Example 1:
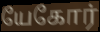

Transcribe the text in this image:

யேகோர்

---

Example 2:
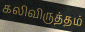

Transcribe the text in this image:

கலிவிருத்தம்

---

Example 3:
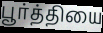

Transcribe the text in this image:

பூர்த்தியை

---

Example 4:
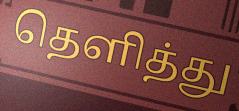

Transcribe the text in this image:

தெளித்து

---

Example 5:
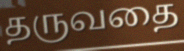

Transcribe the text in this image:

தருவதை